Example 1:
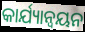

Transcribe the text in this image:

କାର୍ଯ୍ୟାନ୍ବୟନ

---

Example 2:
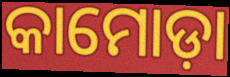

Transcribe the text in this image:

କାମୋଡ଼ା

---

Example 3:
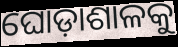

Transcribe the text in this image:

ଘୋଡ଼ାଶାଳକୁ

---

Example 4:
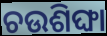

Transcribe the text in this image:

ଚଉଶିଙ୍ଘା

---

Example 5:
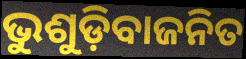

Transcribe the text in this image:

ଭୁଶୁଡ଼ିବାଜନିତ